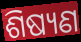
ଶିଷ୍ୟଣ